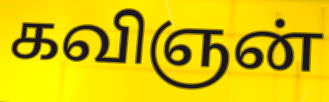
கவிஞன்